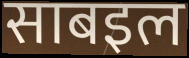
साबइल